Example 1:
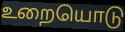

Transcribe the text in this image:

உறையொடு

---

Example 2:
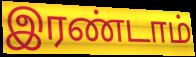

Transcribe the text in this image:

இரண்டாம்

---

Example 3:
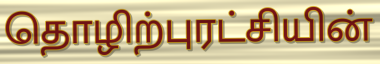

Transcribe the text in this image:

தொழிற்புரட்சியின்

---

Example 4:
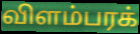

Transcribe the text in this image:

விளம்பரக்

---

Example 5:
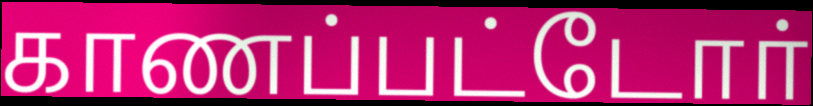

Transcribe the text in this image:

காணப்பட்டோர்